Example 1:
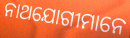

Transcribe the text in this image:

ନାଥଯୋଗୀମାନେ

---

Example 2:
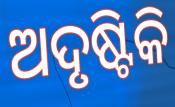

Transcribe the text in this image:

ଅଦୃଷ୍ଟିକି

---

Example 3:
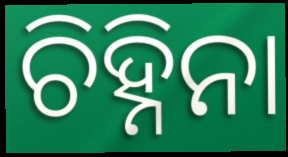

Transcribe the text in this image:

ଚିହ୍ନିନା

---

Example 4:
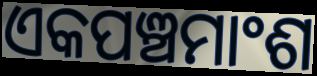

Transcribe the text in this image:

ଏକପଞ୍ଚମାଂଶ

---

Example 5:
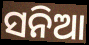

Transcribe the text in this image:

ସନିଆ